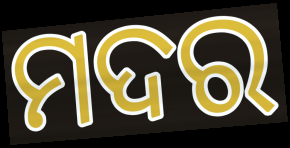
ମଦର